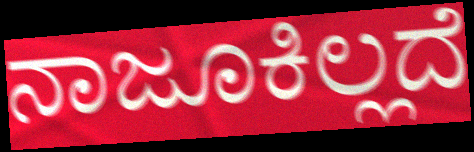
ನಾಜೂಕಿಲ್ಲದೆ